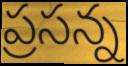
ప్రసన్న